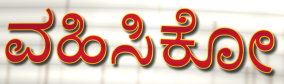
ವಹಿಸಿಕೋ